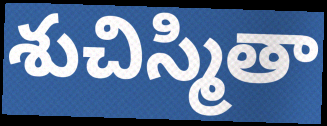
శుచిస్మితా